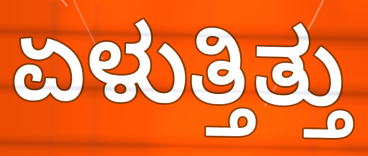
ಏಳುತ್ತಿತ್ತು